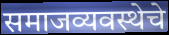
समाजव्यवस्थेचे